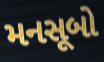
મનસૂબો